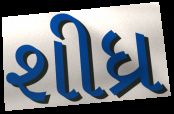
શીધ્ર